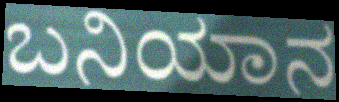
ಬನಿಯಾನ